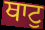
ਥਾਟੁ